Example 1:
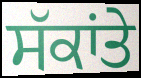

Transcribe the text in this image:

ਸੱਕਾਂਤੇ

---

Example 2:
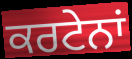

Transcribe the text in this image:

ਕਰਟੇਨਾਂ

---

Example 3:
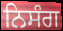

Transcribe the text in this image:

ਨਿਸੰਗ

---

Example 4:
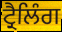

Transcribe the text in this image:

ਟ੍ਰੈਲਿੰਗ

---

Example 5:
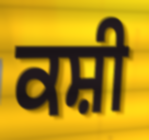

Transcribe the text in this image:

ਕਸ਼ੀ